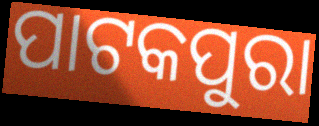
ପାଟକପୁରା